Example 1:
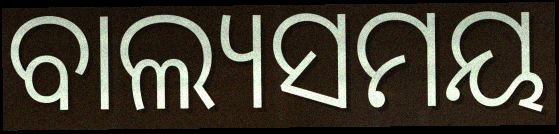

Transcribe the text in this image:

ବାଲ୍ୟସମୟ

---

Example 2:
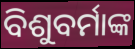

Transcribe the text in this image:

ବିଶୁବର୍ମାଙ୍କ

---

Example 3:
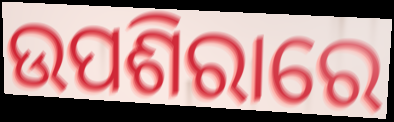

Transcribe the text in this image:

ଉପଶିରାରେ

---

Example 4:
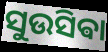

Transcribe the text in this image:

ସୁଉସିଵା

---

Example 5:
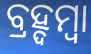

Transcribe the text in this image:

ବ୍ରହ୍ଦମ୍ବା